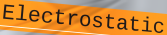
Electrostatic